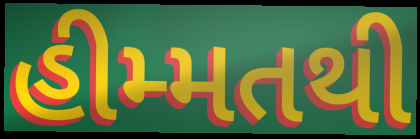
હીમ્મતથી